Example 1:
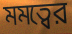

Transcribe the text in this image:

মমত্বের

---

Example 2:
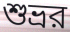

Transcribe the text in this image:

শুভ্রর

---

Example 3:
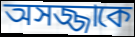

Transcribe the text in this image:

অসজ্জাকে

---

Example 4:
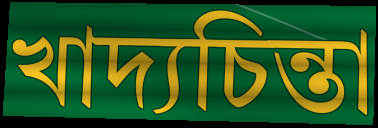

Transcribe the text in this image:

খাদ্যচিন্তা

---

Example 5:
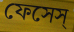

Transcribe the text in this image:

ফেসেস্